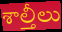
శాల్తీలు